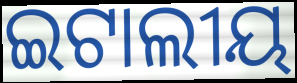
ଇଟାଲୀୟ